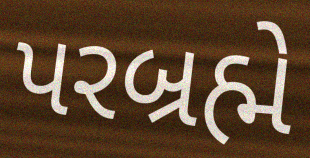
પરબ્રહ્મે